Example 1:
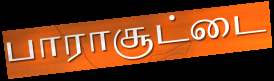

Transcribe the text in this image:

பாராசூட்டை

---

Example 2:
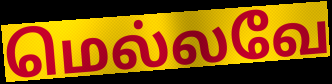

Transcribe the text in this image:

மெல்லவே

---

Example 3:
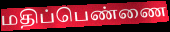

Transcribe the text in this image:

மதிப்பெண்ணை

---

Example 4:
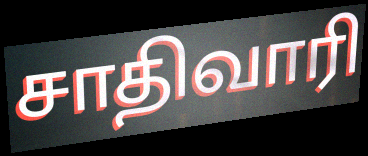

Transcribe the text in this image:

சாதிவாரி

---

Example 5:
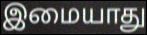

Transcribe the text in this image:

இமையாது